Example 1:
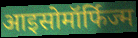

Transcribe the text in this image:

आइसोमॉर्फिज्म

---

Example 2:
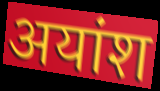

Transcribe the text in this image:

अयांश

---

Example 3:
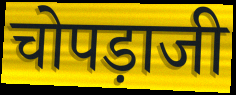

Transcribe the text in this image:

चोपड़ाजी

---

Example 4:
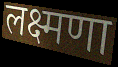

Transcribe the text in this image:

लक्ष्मणा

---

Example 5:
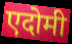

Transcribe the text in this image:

एदोमी